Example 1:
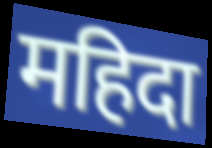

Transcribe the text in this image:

महिदा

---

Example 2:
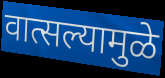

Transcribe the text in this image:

वात्सल्यामुळे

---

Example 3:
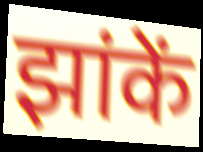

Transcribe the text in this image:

झांकें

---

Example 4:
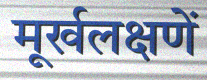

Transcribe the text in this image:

मूर्खलक्षणें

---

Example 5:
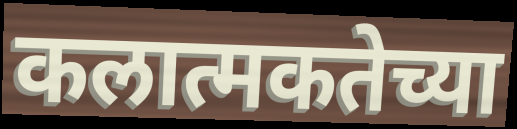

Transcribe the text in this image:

कलात्मकतेच्या